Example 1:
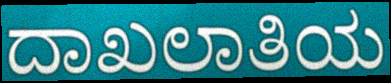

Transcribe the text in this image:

ದಾಖಲಾತಿಯ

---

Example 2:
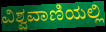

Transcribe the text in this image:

ವಿಶ್ವವಾಣಿಯಲ್ಲಿ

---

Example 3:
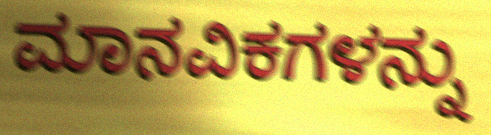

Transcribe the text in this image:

ಮಾನವಿಕಗಳನ್ನು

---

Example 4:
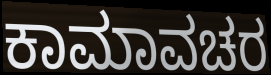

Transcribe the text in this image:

ಕಾಮಾವಚರ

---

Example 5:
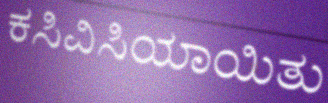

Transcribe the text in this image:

ಕಸಿವಿಸಿಯಾಯಿತು